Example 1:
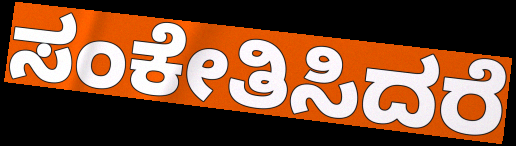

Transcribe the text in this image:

ಸಂಕೇತಿಸಿದರೆ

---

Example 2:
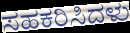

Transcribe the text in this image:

ಸಹಕರಿಸಿದಳು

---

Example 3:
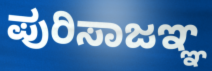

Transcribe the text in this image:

ಪುರಿಸಾಜಞ್ಞ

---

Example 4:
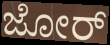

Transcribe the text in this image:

ಜೋರ್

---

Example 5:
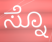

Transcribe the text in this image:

ಸ್ನೊ